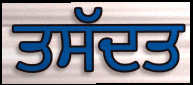
ਤਸੱਦਤ